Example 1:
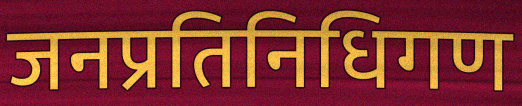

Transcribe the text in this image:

जनप्रतिनिधिगण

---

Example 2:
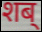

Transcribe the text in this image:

शब्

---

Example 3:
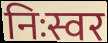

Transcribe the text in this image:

निःस्वर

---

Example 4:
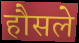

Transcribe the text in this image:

हौसले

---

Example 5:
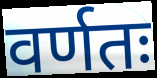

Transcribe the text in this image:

वर्णतः